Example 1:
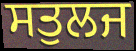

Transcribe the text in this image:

ਸਤੁਲਜ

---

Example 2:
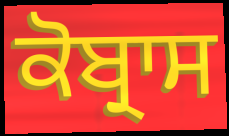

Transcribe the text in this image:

ਕੋਬ੍ਰਾਸ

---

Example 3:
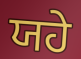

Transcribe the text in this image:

ਯਹੇ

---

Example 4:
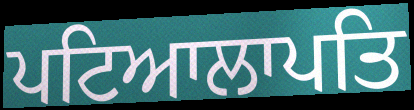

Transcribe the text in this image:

ਪਟਿਆਲਾਪਤਿ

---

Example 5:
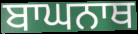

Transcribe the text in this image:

ਬਾਘਨਾਥ